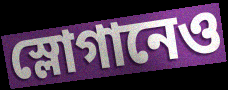
স্লোগানেও